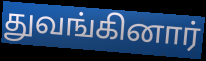
துவங்கினார்